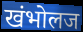
खंभोलज